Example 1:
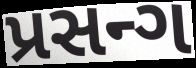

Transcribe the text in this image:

પ્રસન્ગ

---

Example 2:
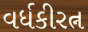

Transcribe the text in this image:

વર્ધકીરત્ન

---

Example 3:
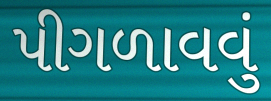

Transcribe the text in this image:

પીગળાવવું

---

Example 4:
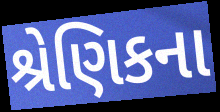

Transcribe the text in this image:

શ્રેણિકના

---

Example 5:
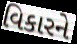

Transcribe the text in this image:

વિકારને